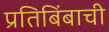
प्रतिबिंबाची